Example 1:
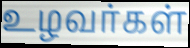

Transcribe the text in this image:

உழவர்கள்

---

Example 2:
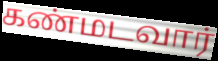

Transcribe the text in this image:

கண்மடவார்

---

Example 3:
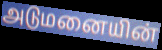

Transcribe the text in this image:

அடுமனையின்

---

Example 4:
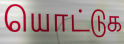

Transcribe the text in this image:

யொட்டுக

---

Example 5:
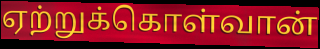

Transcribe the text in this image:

ஏற்றுக்கொள்வான்